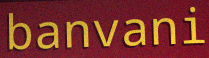
banvani